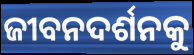
ଜୀବନଦର୍ଶନକୁ